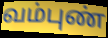
வம்புண்